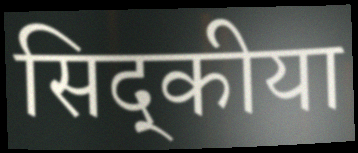
सिद्‌कीया